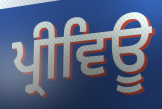
ਪ੍ਰੀਵਿਊ